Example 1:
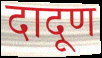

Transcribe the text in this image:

दादूण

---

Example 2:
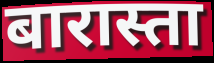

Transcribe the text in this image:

बारास्ता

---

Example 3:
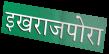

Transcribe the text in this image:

इखराजपोरा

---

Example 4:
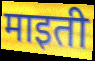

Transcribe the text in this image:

माइती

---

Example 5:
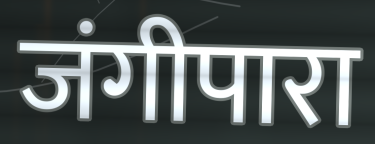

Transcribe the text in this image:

जंगीपारा